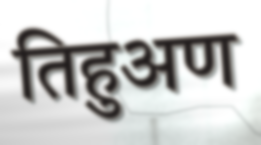
तिहुअण